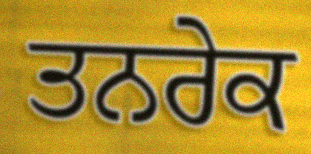
ਤਨਰੇਕ